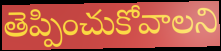
తెప్పించుకోవాలని